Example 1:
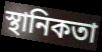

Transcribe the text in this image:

স্থানিকতা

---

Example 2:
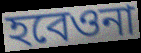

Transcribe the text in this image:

হবেওনা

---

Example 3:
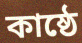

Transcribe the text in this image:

কাষ্ঠে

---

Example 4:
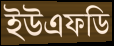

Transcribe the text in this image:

ইউএফডি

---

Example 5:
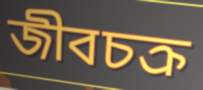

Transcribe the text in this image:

জীবচক্র